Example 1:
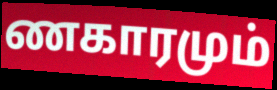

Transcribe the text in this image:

ணகாரமும்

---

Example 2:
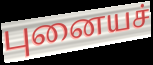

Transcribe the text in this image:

புனையச்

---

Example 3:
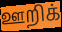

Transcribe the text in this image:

ஊறிக்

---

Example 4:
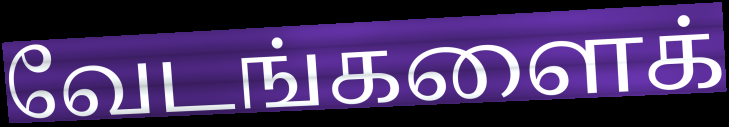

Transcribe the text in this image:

வேடங்களைக்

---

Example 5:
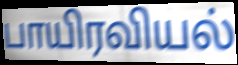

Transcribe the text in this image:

பாயிரவியல்